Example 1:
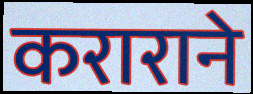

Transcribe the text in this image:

कराराने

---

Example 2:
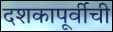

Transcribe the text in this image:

दशकापूर्वीची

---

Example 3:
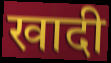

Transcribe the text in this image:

खादी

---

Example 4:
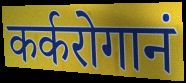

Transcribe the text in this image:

कर्करोगानं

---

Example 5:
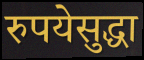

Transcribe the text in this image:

रुपयेसुद्धा